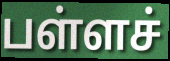
பள்ளச்